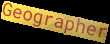
Geographer